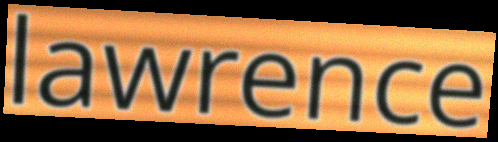
lawrence